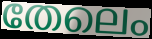
തേലെം